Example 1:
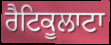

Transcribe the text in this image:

ਰੈਟਿਕੂਲਾਟਾ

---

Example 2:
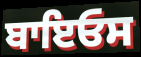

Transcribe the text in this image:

ਬਾਇਓਸ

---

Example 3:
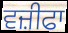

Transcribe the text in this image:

ਵਜ਼ੀਫਾ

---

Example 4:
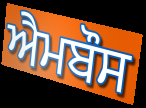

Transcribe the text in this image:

ਐਮਬੌਸ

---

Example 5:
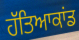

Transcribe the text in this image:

ਹੱਤਿਆਕਾਂਡ